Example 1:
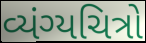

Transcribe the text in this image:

વ્યંગ્યચિત્રો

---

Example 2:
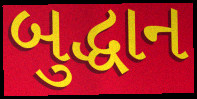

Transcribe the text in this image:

બુદ્ધાન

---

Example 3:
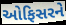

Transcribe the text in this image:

ઓફિસરને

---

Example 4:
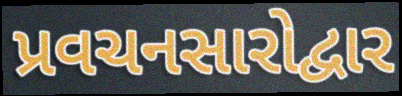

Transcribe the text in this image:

પ્રવચનસારોદ્વાર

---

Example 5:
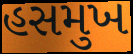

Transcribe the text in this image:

હસમુખ